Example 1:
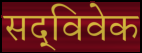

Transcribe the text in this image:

सद्‌विवेक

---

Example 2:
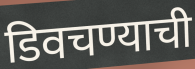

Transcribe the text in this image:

डिवचण्याची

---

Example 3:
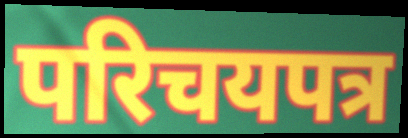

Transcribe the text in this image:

परिचयपत्र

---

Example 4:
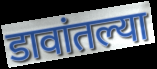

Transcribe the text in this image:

डावांतल्या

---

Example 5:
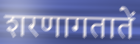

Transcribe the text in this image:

शरणागतातें